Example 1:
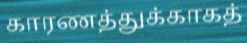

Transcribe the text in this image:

காரணத்துக்காகத்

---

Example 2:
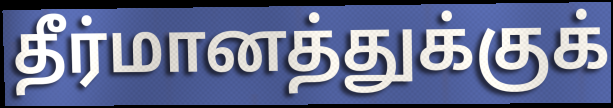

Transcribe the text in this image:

தீர்மானத்துக்குக்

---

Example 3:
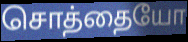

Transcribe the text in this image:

சொத்தையோ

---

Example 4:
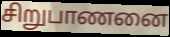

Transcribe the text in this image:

சிறுபாணனை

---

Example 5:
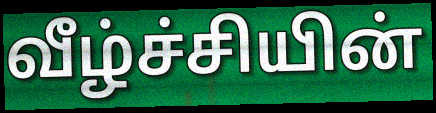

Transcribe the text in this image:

வீழ்ச்சியின்